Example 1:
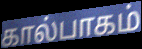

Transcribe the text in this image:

கால்பாகம்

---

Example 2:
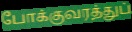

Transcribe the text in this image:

போக்குவரத்துப்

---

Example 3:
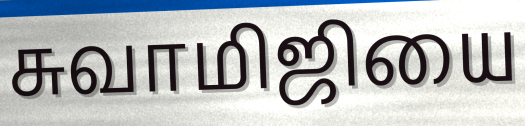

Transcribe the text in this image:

சுவாமிஜியை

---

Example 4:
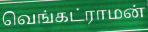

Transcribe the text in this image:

வெங்கட்ராமன்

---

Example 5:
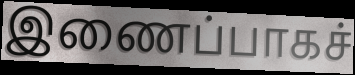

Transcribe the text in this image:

இணைப்பாகச்